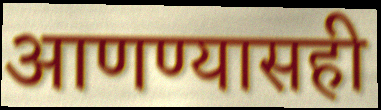
आणण्यासही